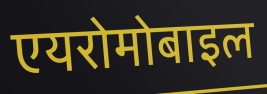
एयरोमोबाइल